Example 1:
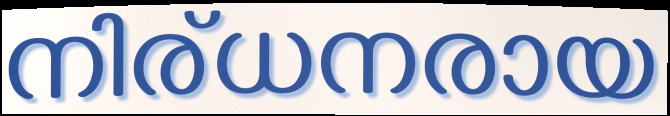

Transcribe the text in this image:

നിര്ധനരായ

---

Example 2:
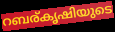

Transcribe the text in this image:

റബര്കൃഷിയുടെ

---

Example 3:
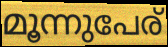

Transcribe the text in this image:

മൂന്നുപേര്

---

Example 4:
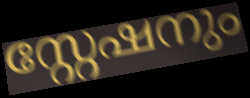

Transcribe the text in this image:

സ്റ്റേഷനും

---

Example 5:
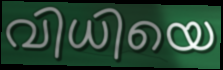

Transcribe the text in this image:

വിധിയെ